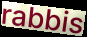
rabbis